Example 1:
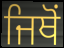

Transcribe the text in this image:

ਜਿਥੋਂ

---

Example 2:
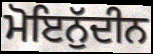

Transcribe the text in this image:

ਮੋਇਨੁੱਦੀਨ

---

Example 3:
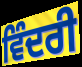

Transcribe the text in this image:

ਵਿੰਦਰੀ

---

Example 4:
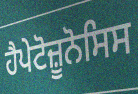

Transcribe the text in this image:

ਹੈਪੇਟੋਜ਼ੂਨੋਸਿਸ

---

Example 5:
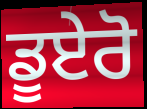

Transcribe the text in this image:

ਡੂਏਰੋ